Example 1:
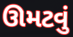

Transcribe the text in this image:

ઊમટવું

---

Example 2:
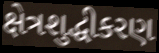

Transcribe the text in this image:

ક્ષેત્રશુદ્ધીકરણ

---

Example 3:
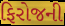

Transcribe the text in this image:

ફિરોજની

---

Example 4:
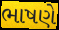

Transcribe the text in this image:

ભાષણે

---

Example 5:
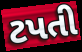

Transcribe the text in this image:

ટપતી